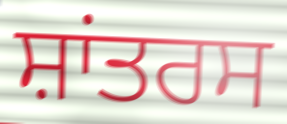
ਸ਼ਾਂਤਰਸ